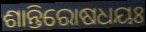
ଶାନ୍ତିରୋଷଧୟଃ